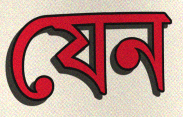
যেন